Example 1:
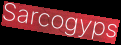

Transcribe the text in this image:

Sarcogyps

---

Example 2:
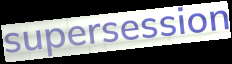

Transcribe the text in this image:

supersession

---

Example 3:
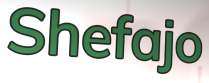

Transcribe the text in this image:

Shefajo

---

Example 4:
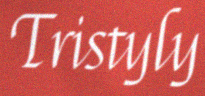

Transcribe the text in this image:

Tristyly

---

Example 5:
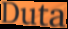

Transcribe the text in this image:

Duta